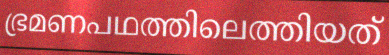
ഭ്രമണപഥത്തിലെത്തിയത്